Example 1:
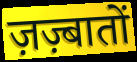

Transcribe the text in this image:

ज़ज़्बातों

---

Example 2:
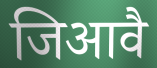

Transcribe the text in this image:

जिआवै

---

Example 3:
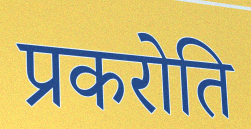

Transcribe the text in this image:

प्रकरोति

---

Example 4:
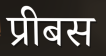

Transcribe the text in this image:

प्रीबस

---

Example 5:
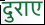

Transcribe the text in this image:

दुराए